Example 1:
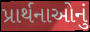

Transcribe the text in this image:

પ્રાર્થનાઓનું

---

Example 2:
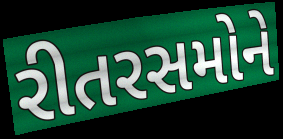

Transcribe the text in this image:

રીતરસમોને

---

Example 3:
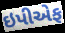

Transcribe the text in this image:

ઇપીએફ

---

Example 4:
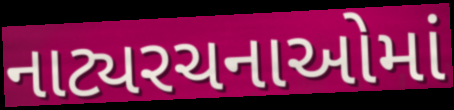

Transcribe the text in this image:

નાટ્યરચનાઓમાં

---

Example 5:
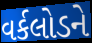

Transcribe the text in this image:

વર્કલોડને